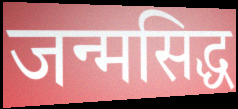
जन्मसिद्ध